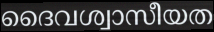
ദൈവശ്വാസീയത